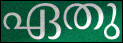
ഏതു